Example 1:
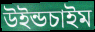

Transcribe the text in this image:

উইন্ডচাইম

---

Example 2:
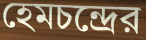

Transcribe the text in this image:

হেমচন্দ্রের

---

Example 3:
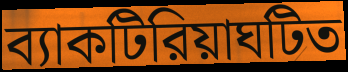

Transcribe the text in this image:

ব্যাকটিরিয়াঘটিত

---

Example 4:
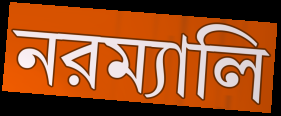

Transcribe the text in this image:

নরম্যালি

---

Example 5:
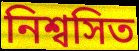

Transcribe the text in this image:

নিশ্বসিত